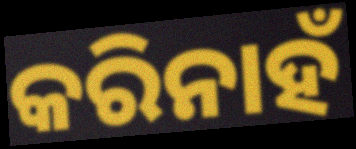
କରିନାହଁ